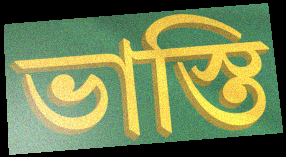
ভাস্তি